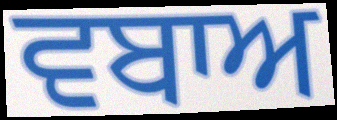
ਵਬਾਅ